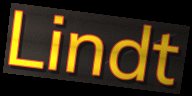
Lindt